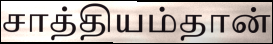
சாத்தியம்தான்